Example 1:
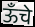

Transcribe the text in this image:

ऊँचे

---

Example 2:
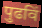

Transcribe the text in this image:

पुढविं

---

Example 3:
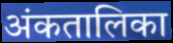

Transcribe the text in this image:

अंकतालिका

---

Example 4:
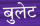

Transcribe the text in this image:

बुलेट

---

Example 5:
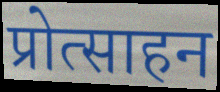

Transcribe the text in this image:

प्रोत्साहन